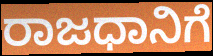
ರಾಜಧಾನಿಗೆ